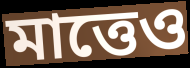
মাত্তেও